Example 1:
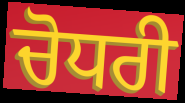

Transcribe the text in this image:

ਚੋਧਰੀ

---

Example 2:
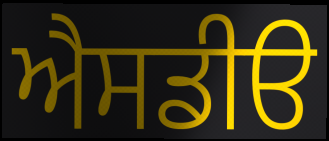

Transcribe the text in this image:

ਐਸਡੀੳ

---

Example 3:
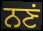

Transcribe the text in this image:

ਨਣਂ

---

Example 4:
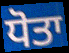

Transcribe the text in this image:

ਧੋਤਾ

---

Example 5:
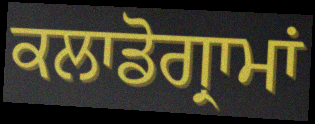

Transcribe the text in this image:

ਕਲਾਡੋਗ੍ਰਾਮਾਂ